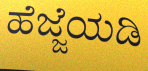
ಹೆಜ್ಜೆಯಡಿ